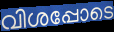
വിശപ്പോടെ